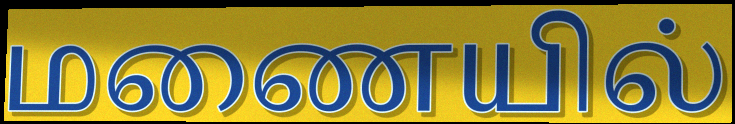
மணையில்